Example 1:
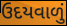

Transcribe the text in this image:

ઉદયવાળું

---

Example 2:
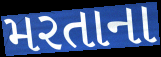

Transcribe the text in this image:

મરતાના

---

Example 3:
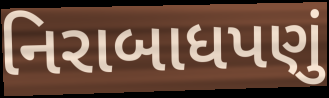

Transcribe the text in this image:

નિરાબાધપણું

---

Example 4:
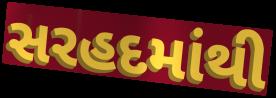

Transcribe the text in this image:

સરહદમાંથી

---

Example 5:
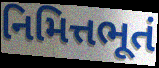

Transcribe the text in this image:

નિમિત્તભૂતં